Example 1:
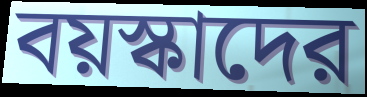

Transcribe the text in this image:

বয়স্কাদের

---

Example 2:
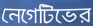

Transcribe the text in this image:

নেগেটিভের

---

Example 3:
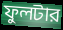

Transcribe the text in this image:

ফুলটার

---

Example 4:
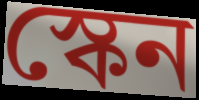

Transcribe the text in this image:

স্কেন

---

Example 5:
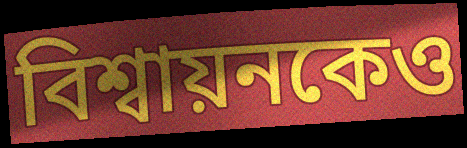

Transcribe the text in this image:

বিশ্বায়নকেও